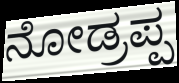
ನೋಡ್ರಪ್ಪ